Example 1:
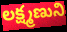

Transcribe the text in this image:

లక్ష్మణుని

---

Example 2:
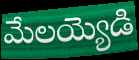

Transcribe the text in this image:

మేలయ్యెడి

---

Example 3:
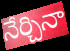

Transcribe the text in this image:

నేర్చినా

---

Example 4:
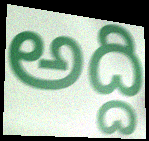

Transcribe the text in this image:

అద్ది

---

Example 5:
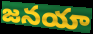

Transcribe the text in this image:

జనయా